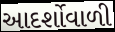
આદર્શોવાળી